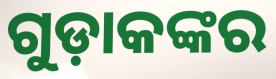
ଗୁଡ଼ାକଙ୍କର